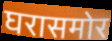
घरासमोर